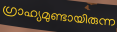
ഗ്രാഹ്യമുണ്ടായിരുന്ന